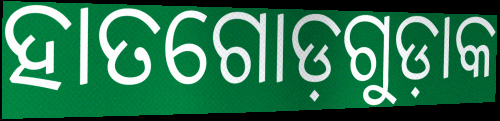
ହାତଗୋଡ଼ଗୁଡ଼ାକ